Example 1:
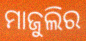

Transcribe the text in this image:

ମାଜୁଲିର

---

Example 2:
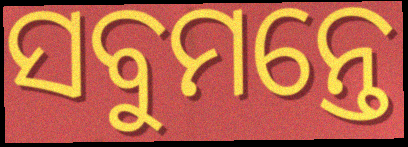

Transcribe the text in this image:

ସବୁମନ୍ତେ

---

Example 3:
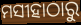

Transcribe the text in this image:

ମସୀହାଠାରୁ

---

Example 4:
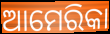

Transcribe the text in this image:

ଆମେରିକା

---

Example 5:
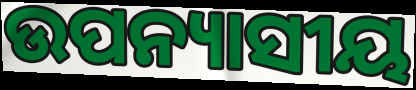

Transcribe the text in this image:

ଉପନ୍ୟାସୀୟ